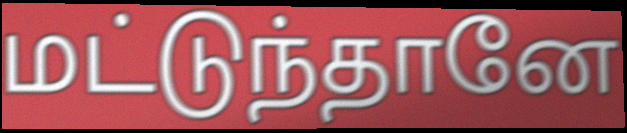
மட்டுந்தானே